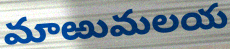
మాఱుమలయ